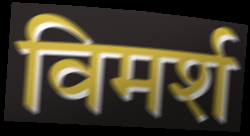
विमर्श